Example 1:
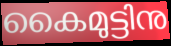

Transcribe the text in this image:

കൈമുട്ടിനു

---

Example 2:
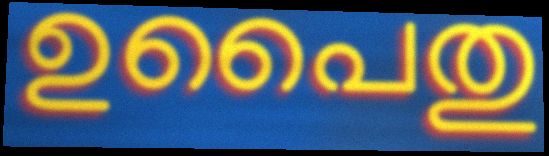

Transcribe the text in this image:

ഉപൈതു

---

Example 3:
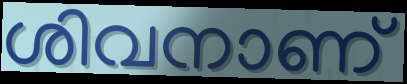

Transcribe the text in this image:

ശിവനാണ്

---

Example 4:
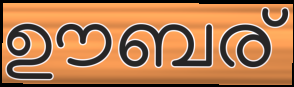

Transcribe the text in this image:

ഊബര്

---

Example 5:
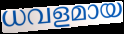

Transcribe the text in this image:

ധവളമായ